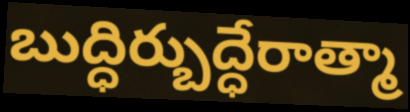
బుద్ధిర్బుద్ధేరాత్మా